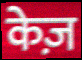
केज़